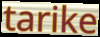
tarike